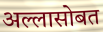
अल्लासोबत